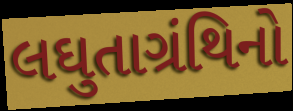
લઘુતાગ્રંથિનો